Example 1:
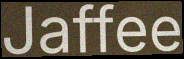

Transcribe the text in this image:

Jaffee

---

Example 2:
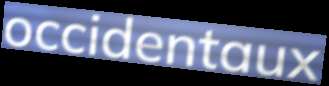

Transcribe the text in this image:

occidentaux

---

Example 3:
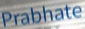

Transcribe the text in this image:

Prabhate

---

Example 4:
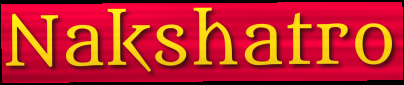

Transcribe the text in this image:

Nakshatro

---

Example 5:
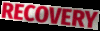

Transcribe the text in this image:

RECOVERY